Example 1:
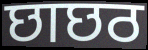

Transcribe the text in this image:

छाछठ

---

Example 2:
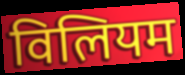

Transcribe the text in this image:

विलियम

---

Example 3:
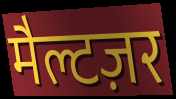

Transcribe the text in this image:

मैल्टज़र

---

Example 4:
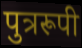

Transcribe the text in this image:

पुत्ररूपी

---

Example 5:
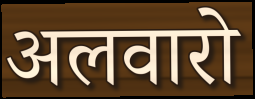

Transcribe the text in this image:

अलवारो